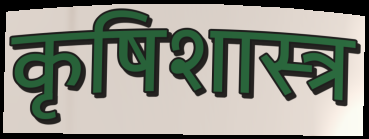
कृषिशास्त्र